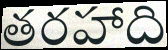
తరహాది